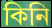
কিনি